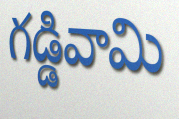
గడ్డివామి